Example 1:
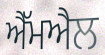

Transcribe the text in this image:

ਐੱਮਐਲ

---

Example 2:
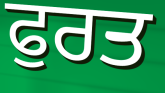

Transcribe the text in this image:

ਫੁਰਤ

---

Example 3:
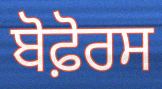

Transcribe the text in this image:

ਬੋਫ਼ੋਰਸ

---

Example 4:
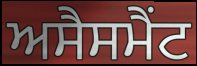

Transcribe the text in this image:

ਅਸੈਸਮੈਂਟ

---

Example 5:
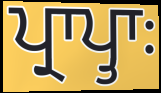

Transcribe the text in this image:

ਪ੍ਰਾਪ੍ਤਾਃ